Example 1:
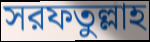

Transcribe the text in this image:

সরফতুল্লাহ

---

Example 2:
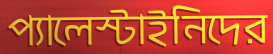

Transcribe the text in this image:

প্যালেস্টাইনিদের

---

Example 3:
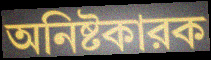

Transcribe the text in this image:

অনিষ্টকারক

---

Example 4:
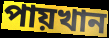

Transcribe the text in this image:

পায়খান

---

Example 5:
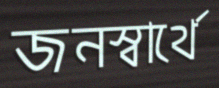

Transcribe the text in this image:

জনস্বার্থে